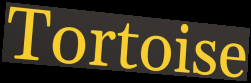
Tortoise